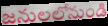
జనులలోనుండి